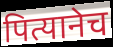
पित्यानेच